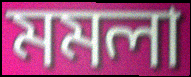
মমলা